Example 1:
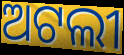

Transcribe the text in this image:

ଅଟଲୀ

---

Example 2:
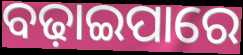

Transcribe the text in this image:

ବଢ଼ାଇପାରେ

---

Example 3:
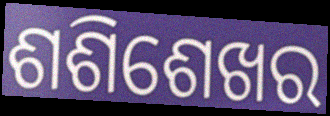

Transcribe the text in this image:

ଶଶିଶେଖର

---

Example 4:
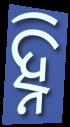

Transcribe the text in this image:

ହ୍ନି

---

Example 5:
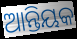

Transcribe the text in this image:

ଆନ୍ତିୟକ